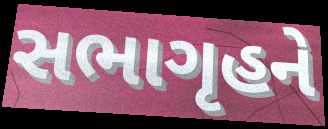
સભાગૃહને